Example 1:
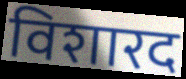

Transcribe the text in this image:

विशारद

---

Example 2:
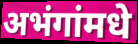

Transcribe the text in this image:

अभंगांमधे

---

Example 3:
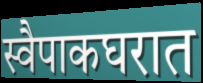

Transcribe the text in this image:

स्वैपाकघरात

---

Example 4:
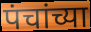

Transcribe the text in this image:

पंचांच्या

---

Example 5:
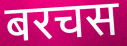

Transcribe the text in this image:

बरचस